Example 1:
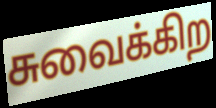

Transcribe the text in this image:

சுவைக்கிற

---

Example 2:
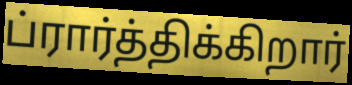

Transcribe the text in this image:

ப்ரார்த்திக்கிறார்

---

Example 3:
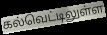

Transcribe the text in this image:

கல்வெட்டிலுள்ள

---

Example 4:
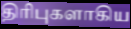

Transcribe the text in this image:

திரிபுகளாகிய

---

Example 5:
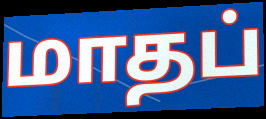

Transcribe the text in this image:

மாதப்